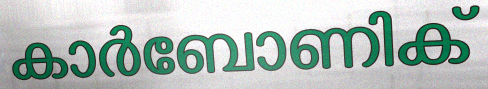
കാർബോണിക്